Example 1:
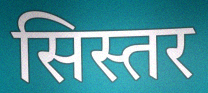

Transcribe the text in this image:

सिस्तर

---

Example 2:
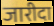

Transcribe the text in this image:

जारीदा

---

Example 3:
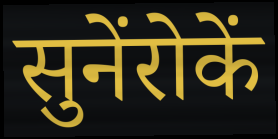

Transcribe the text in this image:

सुनेंरोकें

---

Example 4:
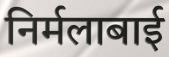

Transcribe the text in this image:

निर्मलाबाई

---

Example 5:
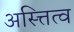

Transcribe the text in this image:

अस्त्तित्व